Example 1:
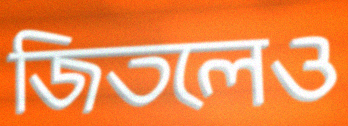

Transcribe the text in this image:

জিতলেও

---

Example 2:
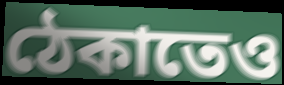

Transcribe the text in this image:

ঠেকাতেও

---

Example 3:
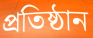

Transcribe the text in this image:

প্রতিষ্ঠান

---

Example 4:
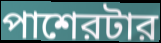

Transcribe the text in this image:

পাশেরটার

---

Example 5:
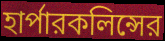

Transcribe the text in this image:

হার্পারকলিন্সের